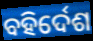
ବହିର୍ଦେଶ